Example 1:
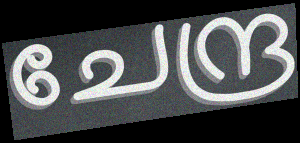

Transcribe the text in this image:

ചേന്ദ്ര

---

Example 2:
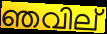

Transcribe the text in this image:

ഞവില്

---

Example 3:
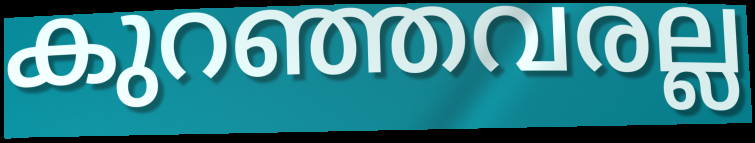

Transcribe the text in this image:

കുറഞ്ഞവരല്ല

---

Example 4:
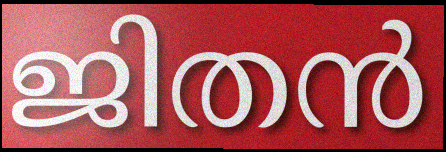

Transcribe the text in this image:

ജിതൻ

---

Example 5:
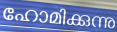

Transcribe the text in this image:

ഹോമിക്കുന്നു